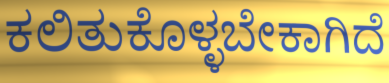
ಕಲಿತುಕೊಳ್ಳಬೇಕಾಗಿದೆ